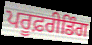
ਪਰੂਫ਼ਰੀਡਿੰਗ